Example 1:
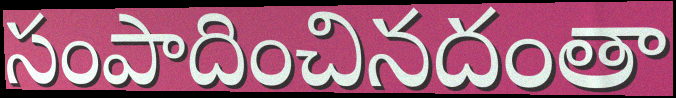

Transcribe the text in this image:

సంపాదించినదంతా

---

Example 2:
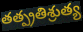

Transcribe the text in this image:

తత్ప్రతిశ్రుత్య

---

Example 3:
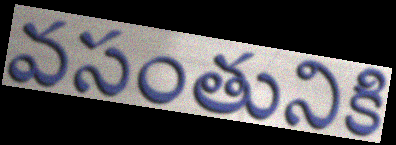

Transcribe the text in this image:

వసంతునికి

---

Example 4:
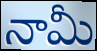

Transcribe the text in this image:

నామీ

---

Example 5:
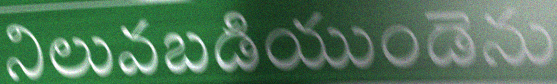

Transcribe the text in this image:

నిలువబడియుండెను